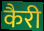
कैरी